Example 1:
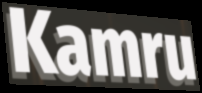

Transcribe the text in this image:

Kamru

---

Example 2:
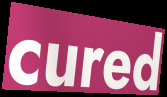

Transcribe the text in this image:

cured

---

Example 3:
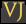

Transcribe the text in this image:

VJ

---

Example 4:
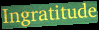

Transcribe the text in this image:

Ingratitude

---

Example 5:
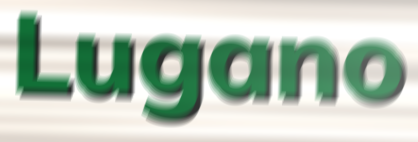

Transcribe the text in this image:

Lugano